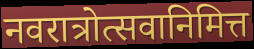
नवरात्रोत्सवानिमित्त